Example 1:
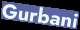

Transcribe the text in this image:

Gurbani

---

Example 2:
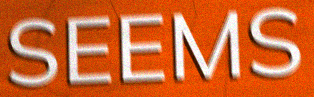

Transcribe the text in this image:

SEEMS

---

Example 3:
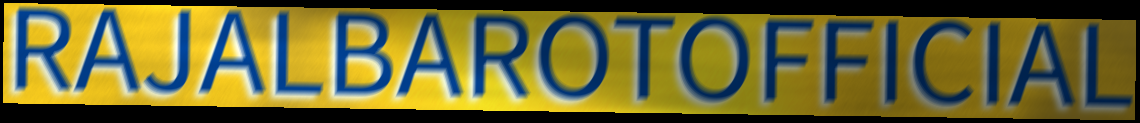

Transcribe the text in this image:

RAJALBAROTOFFICIAL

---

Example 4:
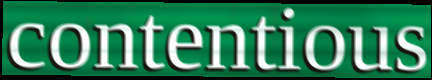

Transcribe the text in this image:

contentious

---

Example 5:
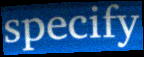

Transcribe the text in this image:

specify